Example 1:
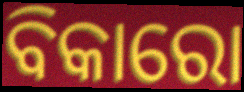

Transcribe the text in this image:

ବିକାରୋ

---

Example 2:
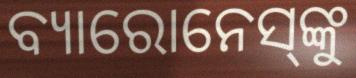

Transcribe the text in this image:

ବ୍ୟାରୋନେସ୍‌ଙ୍କୁ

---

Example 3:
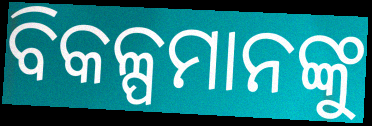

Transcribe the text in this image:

ବିକଳ୍ପମାନଙ୍କୁ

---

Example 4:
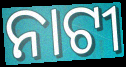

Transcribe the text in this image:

ନାଟୀ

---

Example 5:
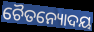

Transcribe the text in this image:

ଚୈତନ୍ୟୋଦୟ